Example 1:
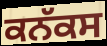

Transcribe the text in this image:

ਕਨੱਕਸ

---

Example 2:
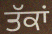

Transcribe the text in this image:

ਤੱਕਾਂ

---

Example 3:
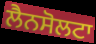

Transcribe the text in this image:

ਲੈਨਸੋਲਟਾ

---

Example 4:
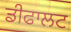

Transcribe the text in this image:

ਡੀਫਾਲਟ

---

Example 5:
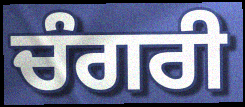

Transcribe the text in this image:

ਚੰਗਰੀ